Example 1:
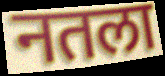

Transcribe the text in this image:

नतला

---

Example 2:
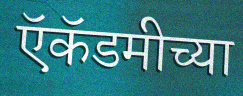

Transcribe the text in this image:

ऍकॅडमीच्या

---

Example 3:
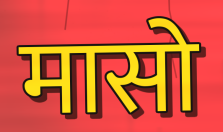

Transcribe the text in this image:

मासो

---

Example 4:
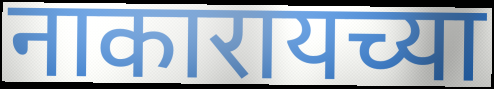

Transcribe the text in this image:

नाकारायच्या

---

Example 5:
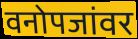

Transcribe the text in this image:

वनोपजांवर